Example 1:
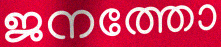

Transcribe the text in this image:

ജനത്തോ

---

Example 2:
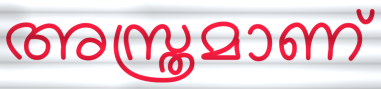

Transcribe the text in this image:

അസ്ത്രമാണ്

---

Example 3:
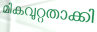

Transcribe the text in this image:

മികവുറ്റതാക്കി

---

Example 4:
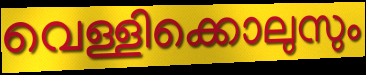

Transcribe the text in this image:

വെള്ളിക്കൊലുസും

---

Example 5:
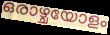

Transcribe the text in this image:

ഒരാഴ്ചയോളം